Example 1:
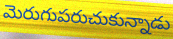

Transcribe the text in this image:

మెరుగుపరుచుకున్నాడు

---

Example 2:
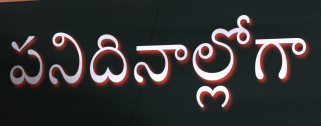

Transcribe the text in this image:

పనిదినాల్లోగా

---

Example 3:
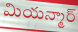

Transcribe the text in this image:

మియన్మార్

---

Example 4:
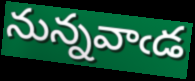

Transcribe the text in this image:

నున్నవాఁడ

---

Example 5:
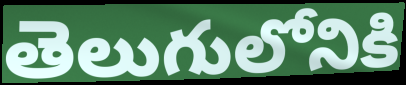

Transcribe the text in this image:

తెలుగులోనికి